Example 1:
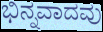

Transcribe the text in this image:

ಭಿನ್ನವಾದವು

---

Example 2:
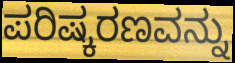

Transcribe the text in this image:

ಪರಿಷ್ಕರಣವನ್ನು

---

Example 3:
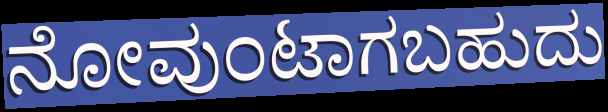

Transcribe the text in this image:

ನೋವುಂಟಾಗಬಹುದು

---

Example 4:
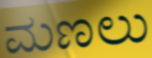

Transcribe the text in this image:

ಮಣಲು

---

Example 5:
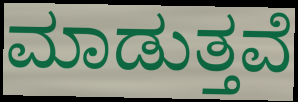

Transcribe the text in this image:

ಮಾಡುತ್ತವೆ